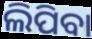
ଲିପିବା